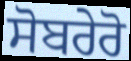
ਸੋਬਰੇਰੋ